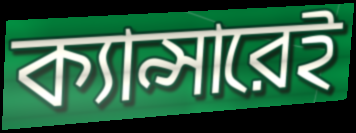
ক্যান্সারেই